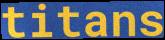
titans